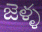
జెళ్ళ